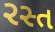
રસ્ત